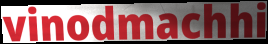
vinodmachhi